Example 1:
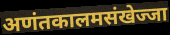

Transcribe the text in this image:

अणंतकालमसंखेज्जा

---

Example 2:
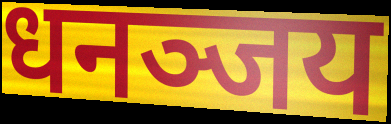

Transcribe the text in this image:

धनञ्जय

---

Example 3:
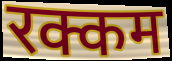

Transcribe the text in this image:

रक्कम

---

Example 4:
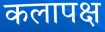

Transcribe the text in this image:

कलापक्ष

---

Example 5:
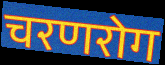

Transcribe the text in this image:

चरणरोग